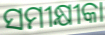
ସମୀକ୍ଷୀକା